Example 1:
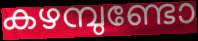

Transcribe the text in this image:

കഴമ്പുണ്ടോ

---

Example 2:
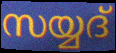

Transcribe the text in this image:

സയ്യദ്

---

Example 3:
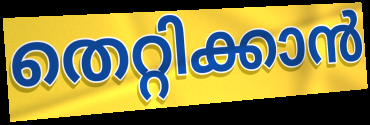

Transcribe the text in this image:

തെറ്റിക്കാൻ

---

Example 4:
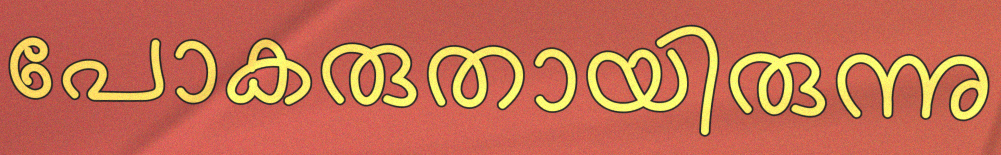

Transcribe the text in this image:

പോകരുതായിരുന്നു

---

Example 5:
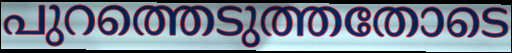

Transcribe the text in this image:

പുറത്തെടുത്തതോടെ